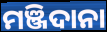
ମଞ୍ଜିଦାନା